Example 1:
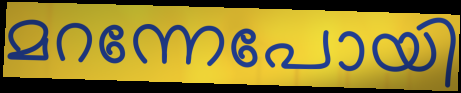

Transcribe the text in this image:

മറന്നേപോയി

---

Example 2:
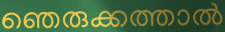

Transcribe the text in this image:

ഞെരുക്കത്താൽ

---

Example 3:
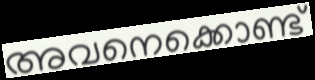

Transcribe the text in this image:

അവനെക്കൊണ്ട്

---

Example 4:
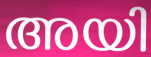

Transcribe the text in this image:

അയി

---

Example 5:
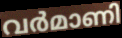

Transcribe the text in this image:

വർമാണി